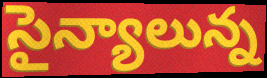
సైన్యాలున్న